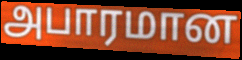
அபாரமான